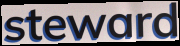
steward